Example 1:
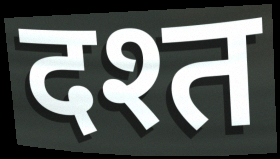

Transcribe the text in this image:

दश्त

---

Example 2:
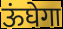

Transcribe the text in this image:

ऊंघेगा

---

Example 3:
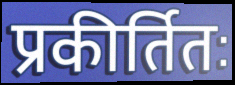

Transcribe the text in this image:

प्रकीर्तितः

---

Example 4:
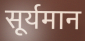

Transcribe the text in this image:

सूर्यमान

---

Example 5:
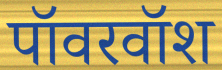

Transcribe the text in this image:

पॉवरवॉश